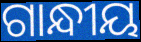
ଗାନ୍ଧୀୟ